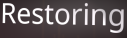
Restoring